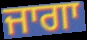
ਜਾਗਾ